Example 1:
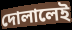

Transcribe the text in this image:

দোলালেই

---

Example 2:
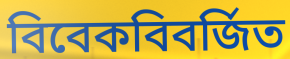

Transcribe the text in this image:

বিবেকবিবর্জিত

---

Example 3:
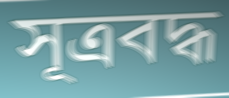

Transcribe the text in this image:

সূত্রবদ্ধ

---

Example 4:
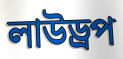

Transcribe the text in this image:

লাউড্রপ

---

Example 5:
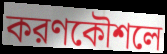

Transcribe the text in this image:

করণকৌশলে